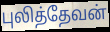
புலித்தேவன்